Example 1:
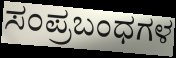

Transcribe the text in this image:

ಸಂಪ್ರಬಂಧಗಳ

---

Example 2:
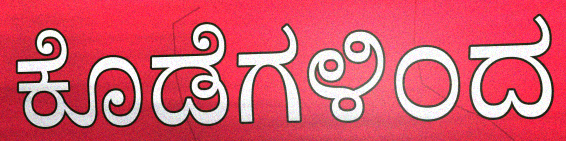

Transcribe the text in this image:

ಕೊಡೆಗಳಿಂದ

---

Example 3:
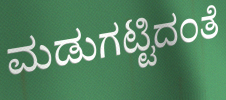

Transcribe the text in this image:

ಮಡುಗಟ್ಟಿದಂತೆ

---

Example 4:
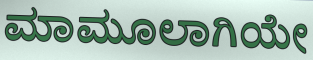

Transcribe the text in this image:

ಮಾಮೂಲಾಗಿಯೇ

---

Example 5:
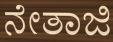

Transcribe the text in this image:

ನೇತಾಜಿ